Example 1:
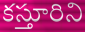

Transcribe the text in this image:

కస్తూరిని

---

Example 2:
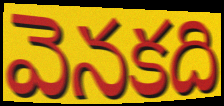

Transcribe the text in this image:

వెనకది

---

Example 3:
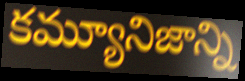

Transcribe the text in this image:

కమ్యూనిజాన్ని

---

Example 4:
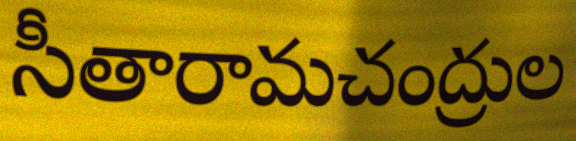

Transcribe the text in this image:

సీతారామచంద్రుల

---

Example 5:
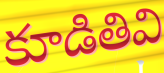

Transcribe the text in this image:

కూడితివి